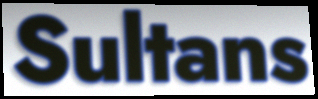
Sultans